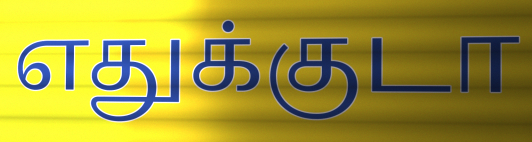
எதுக்குடா